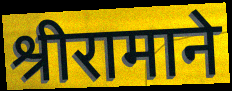
श्रीरामाने